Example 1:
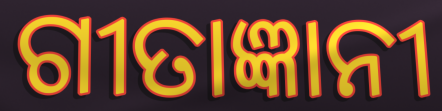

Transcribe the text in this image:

ଗୀତାଜ୍ଞାନୀ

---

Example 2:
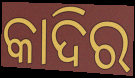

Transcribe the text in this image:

କାଦିର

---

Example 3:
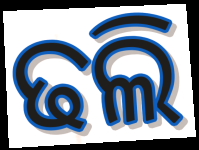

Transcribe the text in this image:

ଢଲି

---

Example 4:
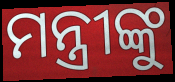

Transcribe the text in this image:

ମନ୍ତ୍ରୀଙ୍କୁ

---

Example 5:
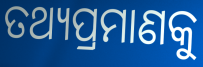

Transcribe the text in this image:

ତଥ୍ୟପ୍ରମାଣକୁ